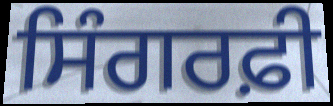
ਸਿੰਗਰਫ਼ੀ